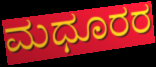
ಮಧೂರರ